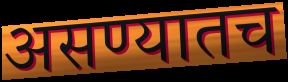
असण्यातच